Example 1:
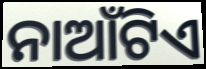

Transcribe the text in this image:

ନାଆଁଟିଏ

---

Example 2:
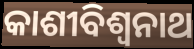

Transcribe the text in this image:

କାଶୀବିଶ୍ଵନାଥ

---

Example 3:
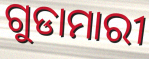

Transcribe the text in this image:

ଗୁଡାମାରୀ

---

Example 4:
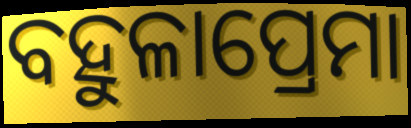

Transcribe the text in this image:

ବହୁଳାପ୍ରେମା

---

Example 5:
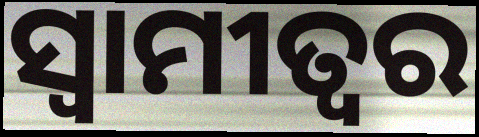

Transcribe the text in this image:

ସ୍ୱାମୀତ୍ୱର